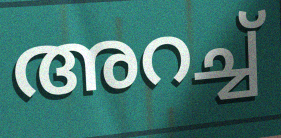
അറച്ച്